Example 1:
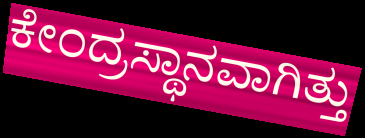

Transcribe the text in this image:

ಕೇಂದ್ರಸ್ಥಾನವಾಗಿತ್ತು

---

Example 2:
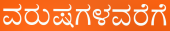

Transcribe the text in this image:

ವರುಷಗಳವರೆಗೆ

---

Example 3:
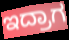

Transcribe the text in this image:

ಇದ್ರಾಗ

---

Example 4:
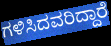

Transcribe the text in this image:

ಗಳಿಸಿದವರಿದ್ದಾರೆ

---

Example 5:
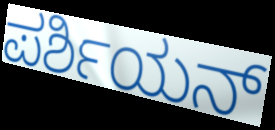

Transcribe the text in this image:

ಪರ್ಶಿಯನ್